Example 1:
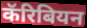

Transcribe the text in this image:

कॅरिबियन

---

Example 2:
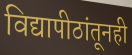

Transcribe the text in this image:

विद्यापीठांतूनही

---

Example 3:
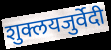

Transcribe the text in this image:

शुक्लयजुर्वेदी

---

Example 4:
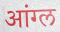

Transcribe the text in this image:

आंग्ल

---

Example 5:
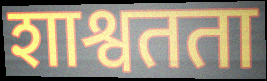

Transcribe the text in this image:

शाश्वतता